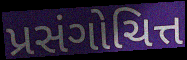
પ્રસંગોચિત્ત